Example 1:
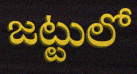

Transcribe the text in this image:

జట్టులో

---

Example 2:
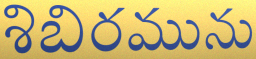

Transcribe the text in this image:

శిబిరమును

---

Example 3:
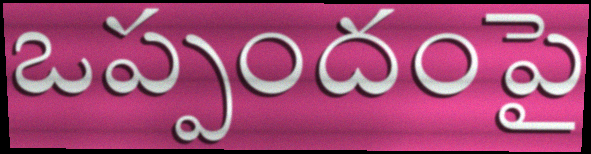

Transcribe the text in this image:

ఒప్పందంపై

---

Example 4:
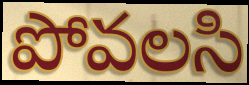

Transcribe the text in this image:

పోవలసి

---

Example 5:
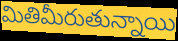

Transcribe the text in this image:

మితిమీరుతున్నాయి